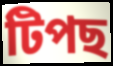
টিপছ